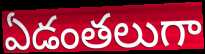
ఏడంతలుగా